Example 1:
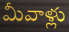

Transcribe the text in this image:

మీవాళ్లు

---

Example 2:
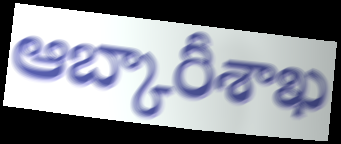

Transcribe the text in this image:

ఆబ్కారీశాఖ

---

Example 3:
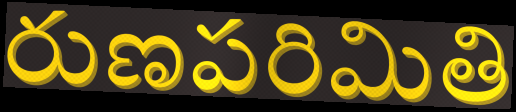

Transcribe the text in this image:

రుణపరిమితి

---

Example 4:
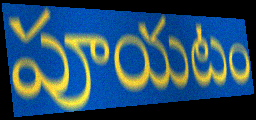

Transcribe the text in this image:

పూయటం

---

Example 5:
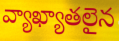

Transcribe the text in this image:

వ్యాఖ్యాతలైన